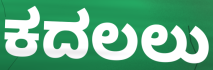
ಕದಲಲು